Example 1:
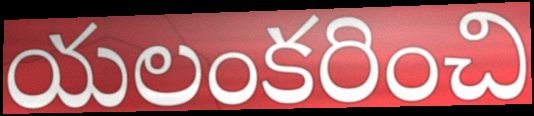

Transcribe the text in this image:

యలంకరించి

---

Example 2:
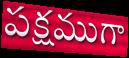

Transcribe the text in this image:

పక్షముగా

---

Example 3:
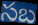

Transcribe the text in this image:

సబ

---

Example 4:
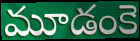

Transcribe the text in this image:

మూడంకె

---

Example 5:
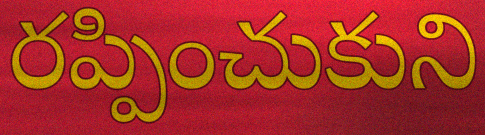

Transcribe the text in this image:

రప్పించుకుని